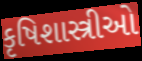
કૃષિશાસ્ત્રીઓ